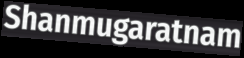
Shanmugaratnam